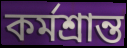
কর্মশ্রান্ত